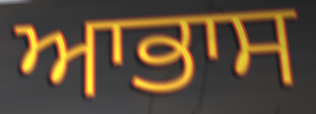
ਆਭਾਸ